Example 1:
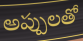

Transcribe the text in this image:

అప్పులతో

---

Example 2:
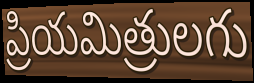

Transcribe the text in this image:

ప్రియమిత్రులగు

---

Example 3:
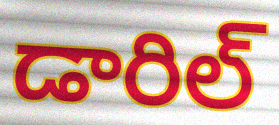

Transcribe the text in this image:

డారిల్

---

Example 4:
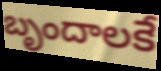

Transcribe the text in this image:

బృందాలకే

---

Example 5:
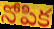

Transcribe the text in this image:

నోపిక